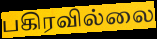
பகிரவில்லை